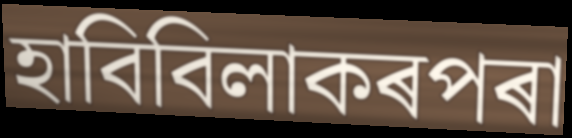
হাবিবিলাকৰপৰা